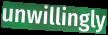
unwillingly